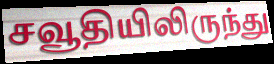
சவூதியிலிருந்து